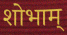
शोभाम्